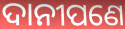
ଦାନୀପଣେ